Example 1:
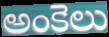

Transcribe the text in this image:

అంకెలు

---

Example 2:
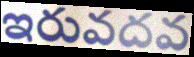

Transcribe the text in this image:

ఇరువదవ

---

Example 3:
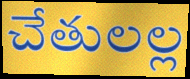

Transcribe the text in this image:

చేతులల్ల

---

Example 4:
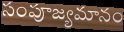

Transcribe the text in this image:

సంపూజ్యమానం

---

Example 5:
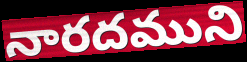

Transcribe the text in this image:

నారదముని